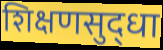
शिक्षणसुद्धा